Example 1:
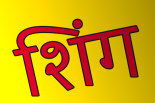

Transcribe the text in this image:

शिंग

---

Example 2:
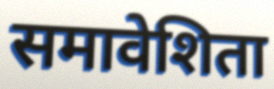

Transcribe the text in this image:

समावेशिता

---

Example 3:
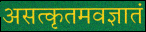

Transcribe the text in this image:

असत्कृतमवज्ञातं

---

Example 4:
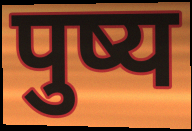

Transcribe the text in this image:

पुष्य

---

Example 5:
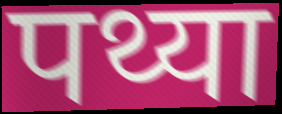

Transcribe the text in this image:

पथ्या